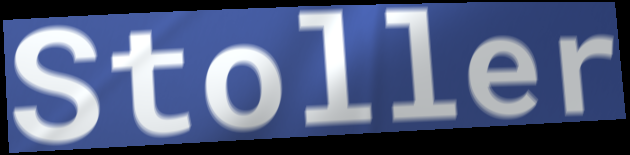
Stoller